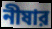
নীষার